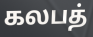
கலபத்